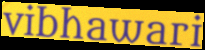
vibhawari